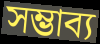
সম্ভাব্য